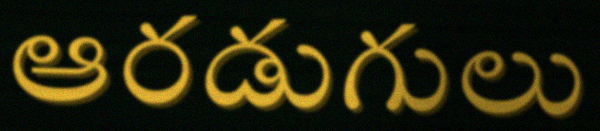
ఆరడుగులు